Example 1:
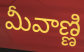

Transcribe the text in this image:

మీవాణ్ణి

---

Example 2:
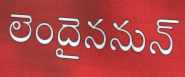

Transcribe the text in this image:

లెందైననున్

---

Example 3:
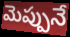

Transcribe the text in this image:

మెప్పునే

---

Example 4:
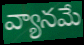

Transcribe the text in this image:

వ్యానమే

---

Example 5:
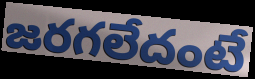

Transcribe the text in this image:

జరగలేదంటే